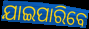
ଯାଇପାରିବେ